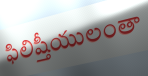
ఫిలిష్తీయులంతా